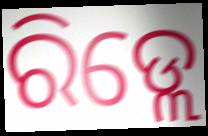
ରିଡ୍ଲେ